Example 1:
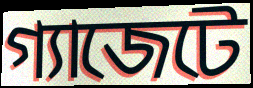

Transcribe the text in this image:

গ্যাজেটে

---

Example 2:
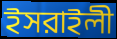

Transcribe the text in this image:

ইসরাইলী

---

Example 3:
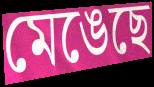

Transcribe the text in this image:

মেঙেছে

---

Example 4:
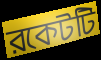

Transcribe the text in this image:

রকেটটি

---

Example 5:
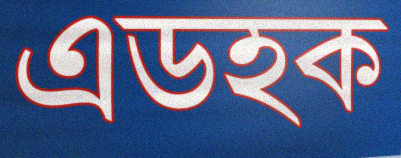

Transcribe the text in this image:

এডহক